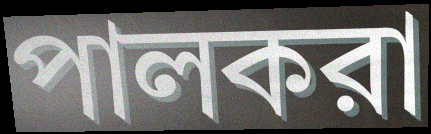
পালকরা